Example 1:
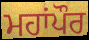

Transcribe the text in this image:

ਮਹਾਂਪੌਰ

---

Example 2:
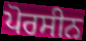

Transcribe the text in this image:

ਪੋਰਸੀਨ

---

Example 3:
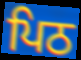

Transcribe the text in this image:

ਪਿਠ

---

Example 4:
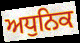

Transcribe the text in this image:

ਅਧੁਨਿਕ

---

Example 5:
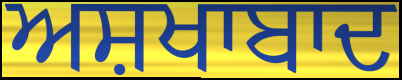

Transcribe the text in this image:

ਅਸ਼ਖਾਬਾਦ